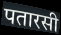
पतारसी